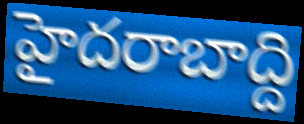
హైదరాబాద్ది